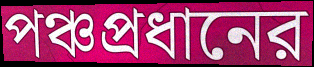
পঞ্চপ্রধানের